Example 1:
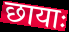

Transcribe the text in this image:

छायाः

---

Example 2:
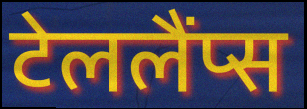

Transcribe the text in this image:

टेललैंप्स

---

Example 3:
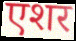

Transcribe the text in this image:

एशर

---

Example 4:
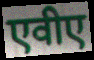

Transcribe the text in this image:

एवीए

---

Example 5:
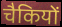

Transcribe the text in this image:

चैकियों